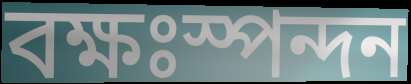
বক্ষঃস্পন্দন